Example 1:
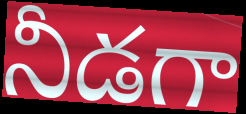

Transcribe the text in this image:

నీడగా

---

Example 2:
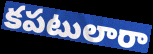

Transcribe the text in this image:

కపటులారా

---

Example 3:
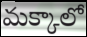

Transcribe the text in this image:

మక్కాలో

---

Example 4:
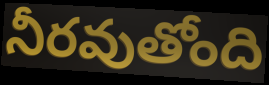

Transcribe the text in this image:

నీరవుతోంది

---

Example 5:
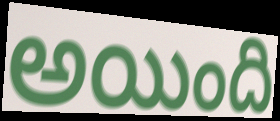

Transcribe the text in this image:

అయింది